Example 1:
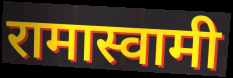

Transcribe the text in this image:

रामास्वामी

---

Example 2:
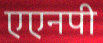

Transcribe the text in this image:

एएनपी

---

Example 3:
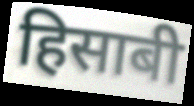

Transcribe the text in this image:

हिसाबी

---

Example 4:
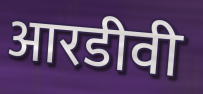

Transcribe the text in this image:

आरडीवी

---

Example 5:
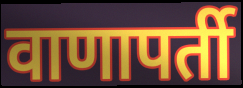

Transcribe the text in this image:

वाणापर्ती